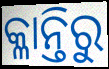
କ୍ଳାନ୍ତିରୁ